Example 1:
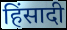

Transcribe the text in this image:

हिंसादी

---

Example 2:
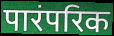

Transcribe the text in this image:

पारंपरिक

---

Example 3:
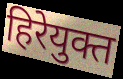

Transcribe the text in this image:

हिरेयुक्त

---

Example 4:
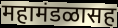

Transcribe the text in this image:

महामंडळासह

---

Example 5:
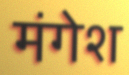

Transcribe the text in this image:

मंगेश